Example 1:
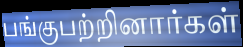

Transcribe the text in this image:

பங்குபற்றினார்கள்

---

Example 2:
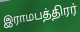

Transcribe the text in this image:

இராமபத்திரர்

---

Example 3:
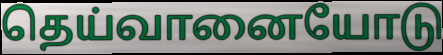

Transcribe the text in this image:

தெய்வானையோடு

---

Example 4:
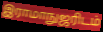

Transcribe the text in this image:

இராமாநுஜரிடம்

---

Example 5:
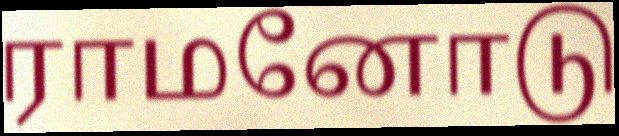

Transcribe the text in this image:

ராமனோடு